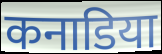
कनाडिया